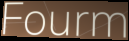
Fourm